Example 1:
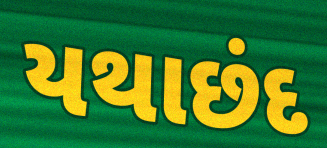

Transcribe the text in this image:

યથાછંદ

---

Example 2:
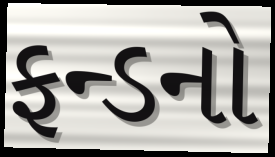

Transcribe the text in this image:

ફન્ડનો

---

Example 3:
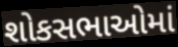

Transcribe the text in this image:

શોકસભાઓમાં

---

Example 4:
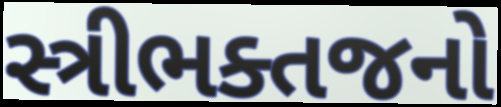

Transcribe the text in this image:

સ્ત્રીભક્તજનો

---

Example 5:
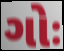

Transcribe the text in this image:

ગોઃ